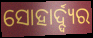
ସୋହାର୍ଦ୍ଦ୍ୟର